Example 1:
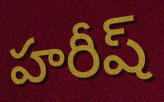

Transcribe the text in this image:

హరీష్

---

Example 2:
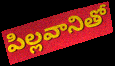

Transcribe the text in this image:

పిల్లవానితో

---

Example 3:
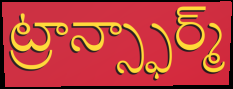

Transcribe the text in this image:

ట్రాన్స్ఫార్మ్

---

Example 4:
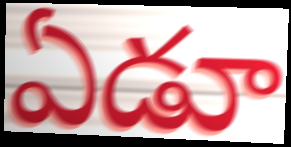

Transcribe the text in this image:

ఏడూ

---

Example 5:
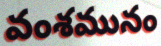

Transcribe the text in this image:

వంశమునం